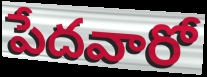
పేదవారో